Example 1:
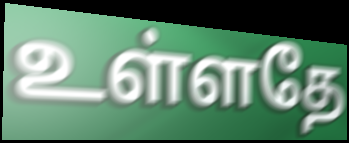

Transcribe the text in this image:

உள்ளதே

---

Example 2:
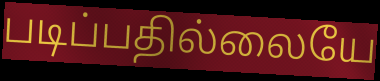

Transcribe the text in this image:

படிப்பதில்லையே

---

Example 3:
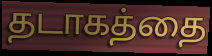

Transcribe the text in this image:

தடாகத்தை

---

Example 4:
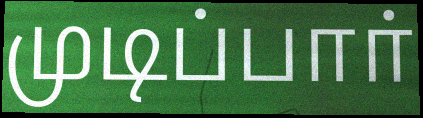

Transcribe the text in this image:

முடிப்பார்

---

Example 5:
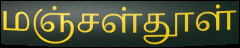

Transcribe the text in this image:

மஞ்சள்தூள்